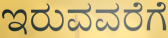
ಇರುವವರೆಗೆ